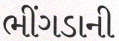
ભીંગડાની